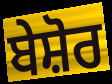
ਬੇਸ਼ੋਰ